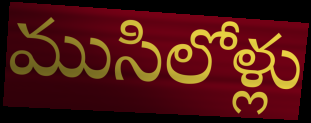
ముసిలోళ్లు